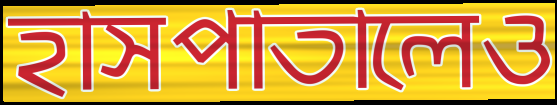
হাসপাতালেও